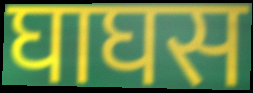
घाघस